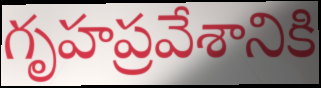
గృహప్రవేశానికి